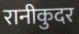
रानीकुदर